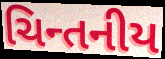
ચિન્તનીય